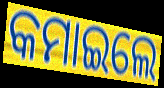
କମାଇଲେ